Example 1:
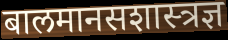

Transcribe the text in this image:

बालमानसशास्त्रज्ञ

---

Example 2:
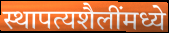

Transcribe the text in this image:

स्थापत्यशैलींमध्ये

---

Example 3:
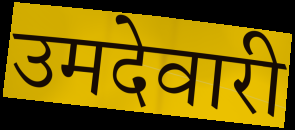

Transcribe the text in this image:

उमदेवारी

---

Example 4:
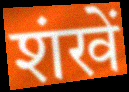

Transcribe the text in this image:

शंखें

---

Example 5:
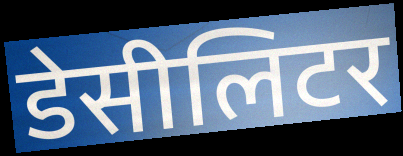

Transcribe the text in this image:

डेसीलिटर